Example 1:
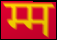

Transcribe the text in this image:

म्म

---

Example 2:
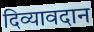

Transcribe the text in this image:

दिव्यावदान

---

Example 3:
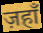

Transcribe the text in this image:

ज़हाँ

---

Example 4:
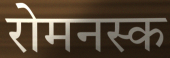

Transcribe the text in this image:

रोमनस्क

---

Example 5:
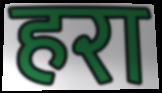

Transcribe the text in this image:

हरा